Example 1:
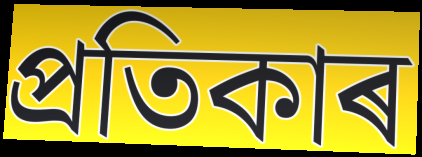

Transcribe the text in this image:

প্ৰতিকাৰ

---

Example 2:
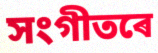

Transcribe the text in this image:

সংগীতৰে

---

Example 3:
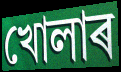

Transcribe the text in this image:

খোলাৰ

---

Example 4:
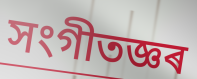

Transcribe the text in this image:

সংগীতজ্ঞৰ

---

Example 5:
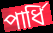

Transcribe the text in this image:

পাৰ্ধি